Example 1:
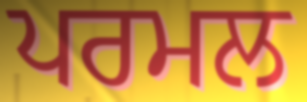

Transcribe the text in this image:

ਪਰਮਲ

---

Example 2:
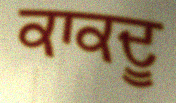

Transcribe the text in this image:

ਕਾਕਦੂ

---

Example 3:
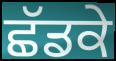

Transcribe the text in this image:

ਛੱਡਕੇ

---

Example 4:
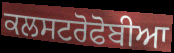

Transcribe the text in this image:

ਕਲਸਟਰੋਫੋਬੀਆ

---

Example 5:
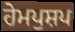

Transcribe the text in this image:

ਹੇਮਪੁਸ਼ਪ